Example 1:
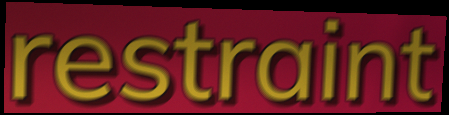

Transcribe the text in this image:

restraint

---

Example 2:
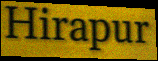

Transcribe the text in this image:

Hirapur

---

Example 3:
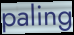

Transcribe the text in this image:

paling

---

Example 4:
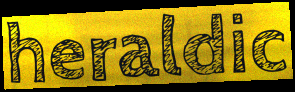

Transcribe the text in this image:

heraldic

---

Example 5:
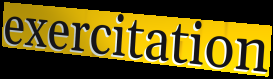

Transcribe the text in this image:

exercitation